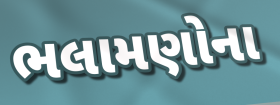
ભલામણોના